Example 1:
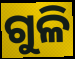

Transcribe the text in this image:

ଗୁଳି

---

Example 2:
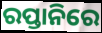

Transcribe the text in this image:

ରପ୍ତାନିରେ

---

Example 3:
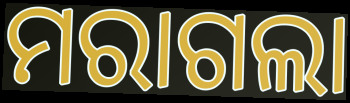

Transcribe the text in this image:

ମରାଗଲା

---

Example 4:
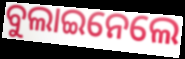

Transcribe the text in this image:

ବୁଲାଇନେଲେ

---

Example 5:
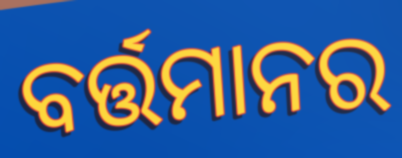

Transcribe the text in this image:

ବର୍ତ୍ତମାନର